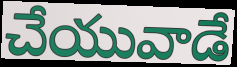
చేయువాడే